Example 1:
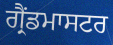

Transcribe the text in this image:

ਗ੍ਰੈਂਡਮਾਸਟਰ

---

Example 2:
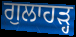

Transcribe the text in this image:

ਗੁਲਾਹੜ੍ਹ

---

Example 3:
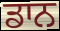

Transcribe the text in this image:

ਡਾਨ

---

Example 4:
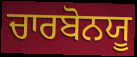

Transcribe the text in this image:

ਚਾਰਬੋਨਯੂ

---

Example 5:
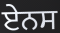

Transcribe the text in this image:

ਏਨਸ